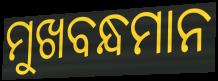
ମୁଖବନ୍ଧମାନ